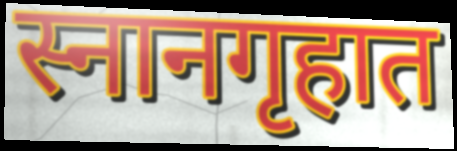
स्नानगृहात